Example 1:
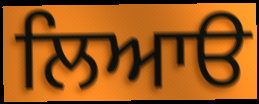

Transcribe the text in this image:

ਲਿਆੳ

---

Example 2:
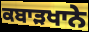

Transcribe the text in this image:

ਕਬਾੜਖਾਨੇ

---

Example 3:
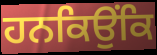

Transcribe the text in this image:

ਹਨਕਿਉਂਕਿ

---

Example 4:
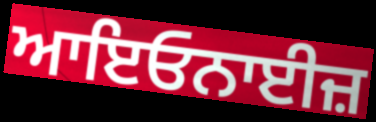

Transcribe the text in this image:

ਆਇਓਨਾਈਜ਼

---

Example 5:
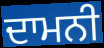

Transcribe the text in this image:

ਦਾਮਨੀ